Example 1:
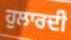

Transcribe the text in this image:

ਹੁਲਾਰਦੀ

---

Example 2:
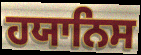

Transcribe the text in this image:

ਹਯਾਨਿਸ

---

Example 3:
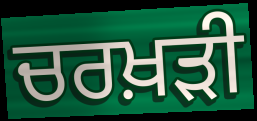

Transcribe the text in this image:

ਚਰਖ਼ੜੀ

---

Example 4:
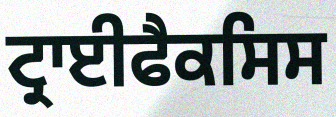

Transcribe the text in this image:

ਟ੍ਰਾਈਫੈਕਸਿਸ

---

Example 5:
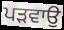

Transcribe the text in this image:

ਪੜਵਾਉ